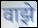
वाझे